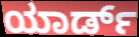
ಯಾರ್ಡ್